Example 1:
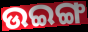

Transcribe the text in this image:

ଉଇଙ୍ଗ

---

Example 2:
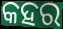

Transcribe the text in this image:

କହର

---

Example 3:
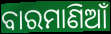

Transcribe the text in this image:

ବାରମାଣିଆଁ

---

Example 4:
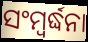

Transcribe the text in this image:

ସଂମ୍ବର୍ଦ୍ଧନା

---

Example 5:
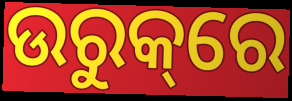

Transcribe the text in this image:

ଉରୁକ୍‌ରେ